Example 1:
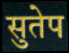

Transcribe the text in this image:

सुतेप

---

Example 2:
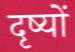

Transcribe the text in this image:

दृष्यों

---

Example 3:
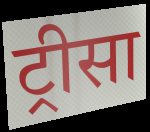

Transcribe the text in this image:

ट्रीसा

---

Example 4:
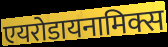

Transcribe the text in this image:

एयरोडायनामिक्स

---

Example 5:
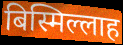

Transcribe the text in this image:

बिस्मिल्लाह